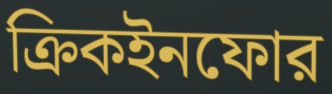
ক্রিকইনফোর